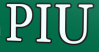
PIU